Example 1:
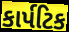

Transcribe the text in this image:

કાર્પટિક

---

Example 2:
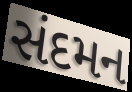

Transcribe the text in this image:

સંદમન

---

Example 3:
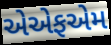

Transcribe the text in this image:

એએફએમ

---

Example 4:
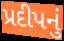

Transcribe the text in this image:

પ્રદીપનું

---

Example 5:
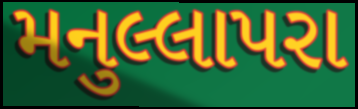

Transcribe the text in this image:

મનુલ્લાપરા